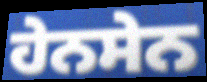
ਹੇਨਸੇਨ